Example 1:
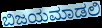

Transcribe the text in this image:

ಬಿಜಯಮಾಡಲಿ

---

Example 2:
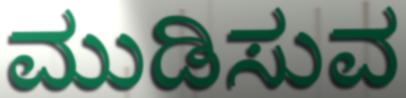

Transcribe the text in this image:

ಮುಡಿಸುವ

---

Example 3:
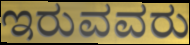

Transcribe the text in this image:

ಇರುವವರು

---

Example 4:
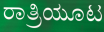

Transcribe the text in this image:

ರಾತ್ರಿಯೂಟ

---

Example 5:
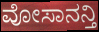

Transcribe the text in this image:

ವೋಸಾನನ್ತಿ